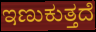
ಇಣುಕುತ್ತದೆ